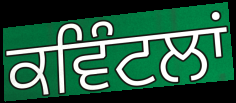
ਕਵਿੰਟਲਾਂ